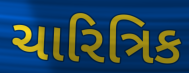
ચારિત્રિક